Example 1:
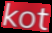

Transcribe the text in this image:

kot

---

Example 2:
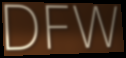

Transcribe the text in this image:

DFW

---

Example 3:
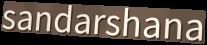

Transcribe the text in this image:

sandarshana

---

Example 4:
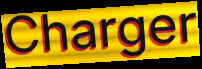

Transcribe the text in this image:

Charger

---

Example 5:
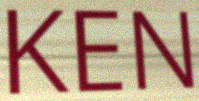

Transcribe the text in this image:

KEN